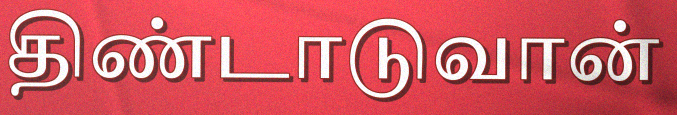
திண்டாடுவான்